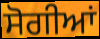
ਸੋਗੀਆਂ